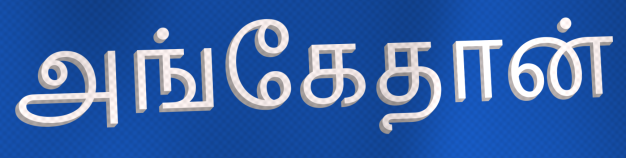
அங்கேதான்